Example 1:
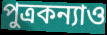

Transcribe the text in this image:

পুত্রকন্যাও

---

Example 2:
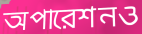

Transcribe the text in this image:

অপারেশনও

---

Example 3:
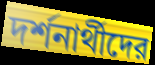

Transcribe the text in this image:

দর্শনার্থীদের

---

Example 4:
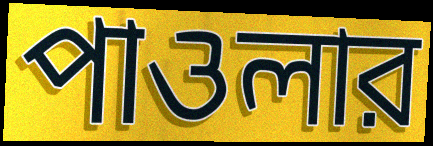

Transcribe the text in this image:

পাওলার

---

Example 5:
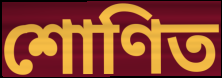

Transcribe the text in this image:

শোণিত